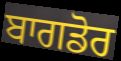
ਬਾਗਡੋਰ